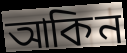
আকিন